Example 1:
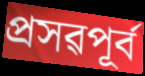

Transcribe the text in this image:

প্ৰসৱপূৰ্ব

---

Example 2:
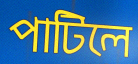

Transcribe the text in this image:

পাটিলে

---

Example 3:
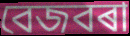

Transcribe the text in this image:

বেজবৰা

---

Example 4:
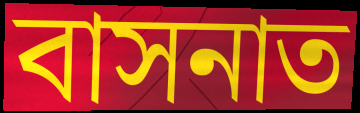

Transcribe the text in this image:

বাসনাত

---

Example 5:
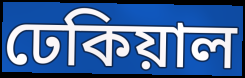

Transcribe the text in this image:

ঢেকিয়াল